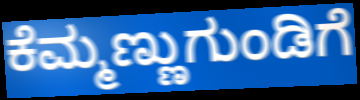
ಕೆಮ್ಮಣ್ಣುಗುಂಡಿಗೆ